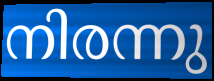
നിരന്നു